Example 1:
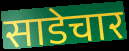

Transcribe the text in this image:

साडेचार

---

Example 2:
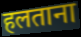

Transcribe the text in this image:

हलताना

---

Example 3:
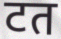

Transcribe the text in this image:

टत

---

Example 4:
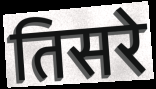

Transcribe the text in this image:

तिसरे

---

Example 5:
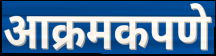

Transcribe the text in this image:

आक्रमकपणे